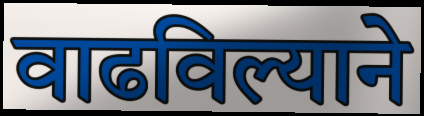
वाढविल्याने